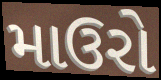
માઉરો